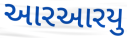
આરઆરયુ